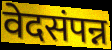
वेदसंपन्न